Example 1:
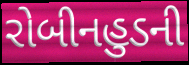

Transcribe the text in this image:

રોબીનહુડની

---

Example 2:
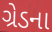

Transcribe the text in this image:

ગ્રેડના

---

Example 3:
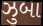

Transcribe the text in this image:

ઝુબા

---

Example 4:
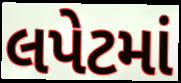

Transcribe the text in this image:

લપેટમાં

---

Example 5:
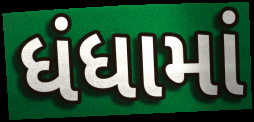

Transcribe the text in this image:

ધંધામાં